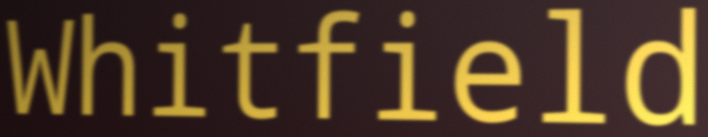
Whitfield